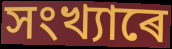
সংখ্যাৰে